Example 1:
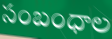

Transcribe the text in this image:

సంబంధాల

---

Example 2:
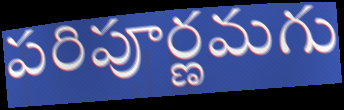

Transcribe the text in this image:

పరిపూర్ణమగు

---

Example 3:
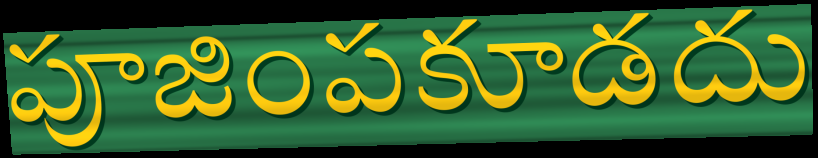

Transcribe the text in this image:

పూజింపకూడదు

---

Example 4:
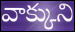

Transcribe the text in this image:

వాక్కుని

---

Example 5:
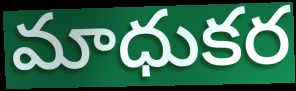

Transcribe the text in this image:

మాధుకర